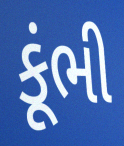
કૂંભી